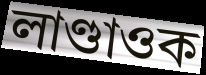
লাণ্ডাওক